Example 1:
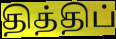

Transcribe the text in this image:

தித்திப்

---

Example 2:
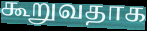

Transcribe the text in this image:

கூறுவதாக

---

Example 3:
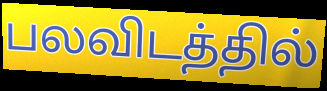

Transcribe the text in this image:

பலவிடத்தில்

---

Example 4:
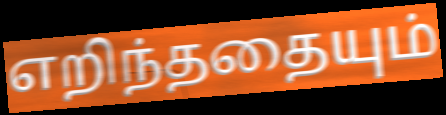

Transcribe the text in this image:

எறிந்ததையும்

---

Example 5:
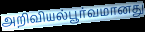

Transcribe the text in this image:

அறிவியல்பூர்வமானது